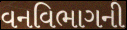
વનવિભાગની